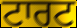
ਟਾਰਟ